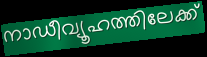
നാഡീവ്യൂഹത്തിലേക്ക്